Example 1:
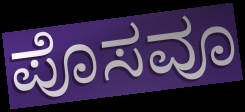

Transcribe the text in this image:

ಪೊಸವೂ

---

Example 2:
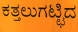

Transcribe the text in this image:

ಕತ್ತಲುಗಟ್ಟಿದ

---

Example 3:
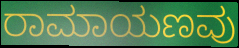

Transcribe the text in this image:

ರಾಮಾಯಣವು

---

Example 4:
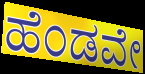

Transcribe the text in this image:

ಹೆಂಡವೇ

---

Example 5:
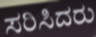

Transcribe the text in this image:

ಸರಿಸಿದರು